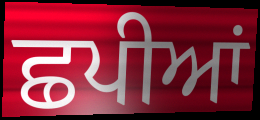
ਛਪੀਆਂ